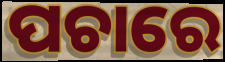
ପଚାରେ